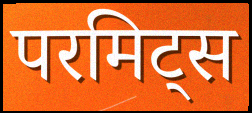
परमिट्स